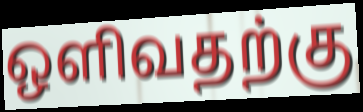
ஒளிவதற்கு